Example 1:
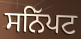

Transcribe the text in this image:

ਸਨਿੱਪਟ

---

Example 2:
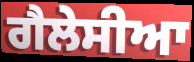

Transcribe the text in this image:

ਗੈਲੇਸੀਆ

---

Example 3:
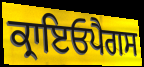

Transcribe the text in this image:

ਕ੍ਰਾਇਓਪੈਗਸ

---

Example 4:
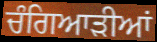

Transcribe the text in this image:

ਚੰਗਿਆੜੀਆਂ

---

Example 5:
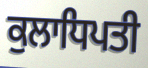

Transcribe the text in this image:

ਕੁਲਾਧਿਪਤੀ